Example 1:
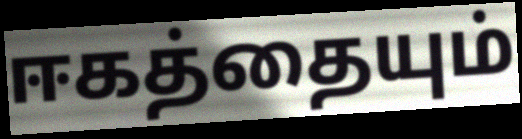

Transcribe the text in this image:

ஈகத்தையும்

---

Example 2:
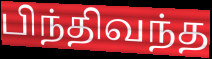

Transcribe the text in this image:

பிந்திவந்த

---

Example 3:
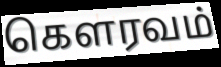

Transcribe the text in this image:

கெளரவம்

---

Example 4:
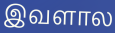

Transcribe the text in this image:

இவளால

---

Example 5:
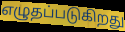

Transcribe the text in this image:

எழுதப்படுகிறது